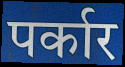
पर्कार